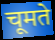
चूमते